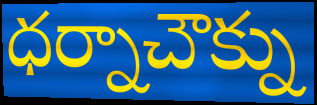
ధర్నాచౌక్ను